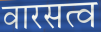
वारसत्व